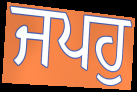
ਜਪਹੁ